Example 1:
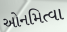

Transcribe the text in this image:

ઓનમિત્વા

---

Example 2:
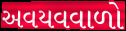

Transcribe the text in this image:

અવયવવાળો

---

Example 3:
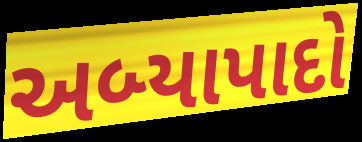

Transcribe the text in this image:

અબ્યાપાદો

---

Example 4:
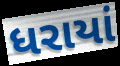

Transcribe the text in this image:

ધરાયાં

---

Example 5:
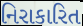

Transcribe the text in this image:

નિરાકારિત